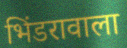
भिंडरावाला